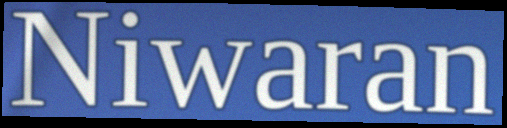
Niwaran